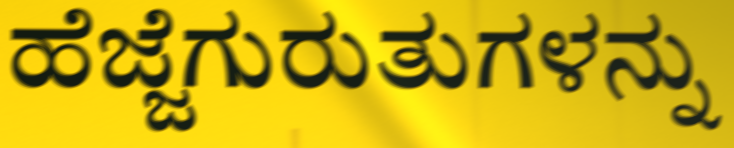
ಹೆಜ್ಜೆಗುರುತುಗಳನ್ನು